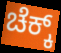
ಚೆಕ್ಕ್